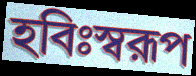
হবিঃস্বরূপ